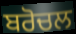
ਬਰੋਚਲ